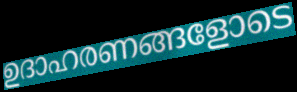
ഉദാഹരണങ്ങളോടെ